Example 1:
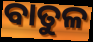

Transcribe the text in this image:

ବାତୁଳ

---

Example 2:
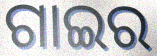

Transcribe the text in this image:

ଗାଇର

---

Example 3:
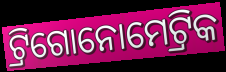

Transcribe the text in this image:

ଟ୍ରିଗୋନୋମେଟ୍ରିକ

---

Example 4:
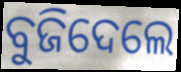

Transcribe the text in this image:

ବୁଜିଦେଲେ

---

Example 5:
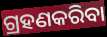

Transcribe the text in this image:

ଗ୍ରହଣକରିବା